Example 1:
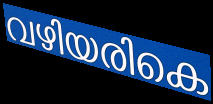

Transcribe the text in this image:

വഴിയരികെ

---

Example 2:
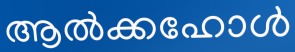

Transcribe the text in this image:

ആൽക്കഹോൾ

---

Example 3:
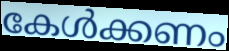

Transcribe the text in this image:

കേൾക്കണം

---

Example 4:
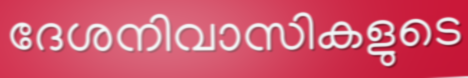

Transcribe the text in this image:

ദേശനിവാസികളുടെ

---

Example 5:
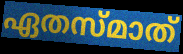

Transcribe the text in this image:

ഏതസ്മാത്